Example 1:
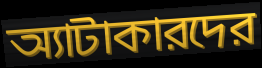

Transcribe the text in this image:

অ্যাটাকারদের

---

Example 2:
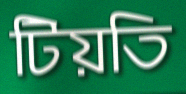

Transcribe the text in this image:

টিয়তি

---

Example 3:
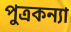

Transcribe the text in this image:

পুত্রকন্যা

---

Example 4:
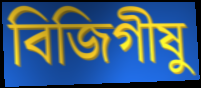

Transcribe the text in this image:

বিজিগীষু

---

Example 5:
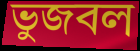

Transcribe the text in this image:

ভুজবল